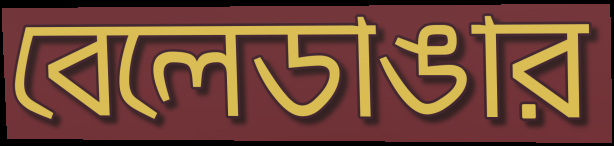
বেলেডাঙার